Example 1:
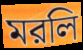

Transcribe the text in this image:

মরলি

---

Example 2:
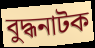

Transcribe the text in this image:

বুদ্ধনাটক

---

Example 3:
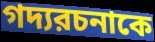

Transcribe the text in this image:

গদ্যরচনাকে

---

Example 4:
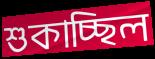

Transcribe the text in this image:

শুকাচ্ছিল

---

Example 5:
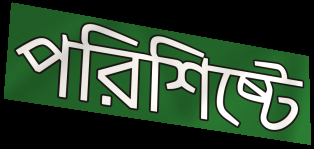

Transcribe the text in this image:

পরিশিষ্টে